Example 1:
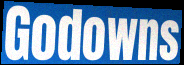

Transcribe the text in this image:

Godowns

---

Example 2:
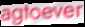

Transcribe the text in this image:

agtoever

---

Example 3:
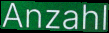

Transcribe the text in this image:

Anzahl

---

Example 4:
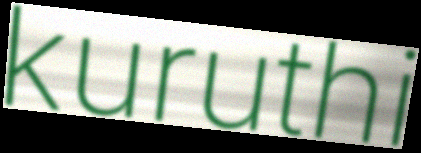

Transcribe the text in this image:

kuruthi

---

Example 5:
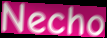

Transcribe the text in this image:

Necho